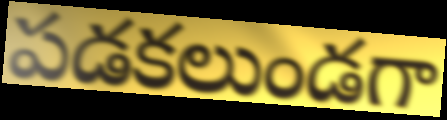
పడకలుండగా